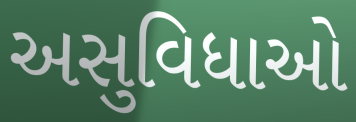
અસુવિધાઓ